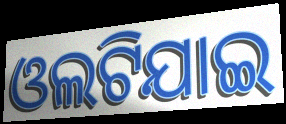
ଓଲଟିଯାଇ